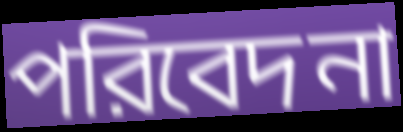
পরিবেদনা